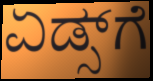
ಏಡ್ಸ್‌ಗೆ